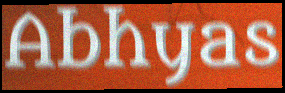
Abhyas